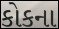
કોકના